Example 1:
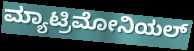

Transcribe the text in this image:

ಮ್ಯಾಟ್ರಿಮೋನಿಯಲ್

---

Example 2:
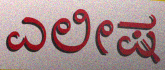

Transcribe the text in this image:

ಎಲೀಷ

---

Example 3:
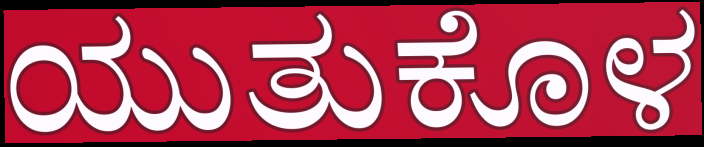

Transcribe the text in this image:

ಯುತುಕೊಳ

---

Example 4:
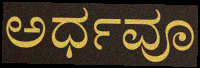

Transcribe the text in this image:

ಅರ್ಧವೂ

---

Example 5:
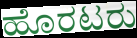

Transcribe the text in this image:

ಹೊರಟರು